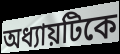
অধ্যায়টিকে